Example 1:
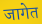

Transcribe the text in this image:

जागेत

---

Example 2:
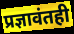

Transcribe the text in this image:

प्रज्ञावंतही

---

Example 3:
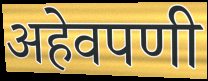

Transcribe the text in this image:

अहेवपणी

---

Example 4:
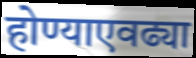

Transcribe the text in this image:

होण्याएवढ्या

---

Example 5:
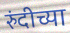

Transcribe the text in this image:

रुंदीच्या